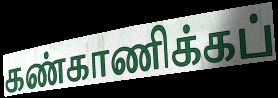
கண்காணிக்கப்